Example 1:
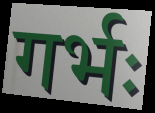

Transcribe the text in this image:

गर्भः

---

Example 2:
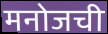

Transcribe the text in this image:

मनोजची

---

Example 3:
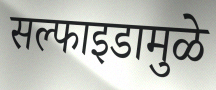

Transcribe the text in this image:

सल्फाइडामुळे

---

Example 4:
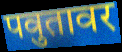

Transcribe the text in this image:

पवुतावर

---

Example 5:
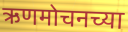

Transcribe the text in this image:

ऋणमोचनच्या